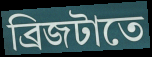
ব্রিজটাতে